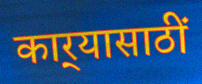
कार्यासाठीं